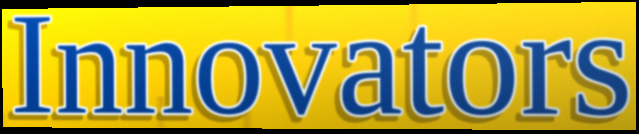
Innovators